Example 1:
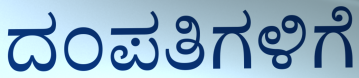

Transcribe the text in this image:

ದಂಪತಿಗಳಿಗೆ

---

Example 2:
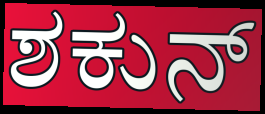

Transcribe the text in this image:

ಶಕುನ್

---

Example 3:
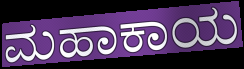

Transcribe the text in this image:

ಮಹಾಕಾಯ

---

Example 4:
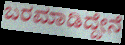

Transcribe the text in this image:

ಬರಮಾಡಿದ್ದೇನೆ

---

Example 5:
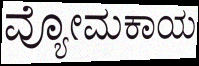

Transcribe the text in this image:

ವ್ಯೋಮಕಾಯ